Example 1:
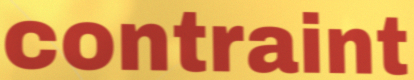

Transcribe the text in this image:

contraint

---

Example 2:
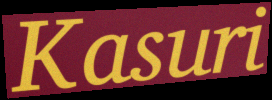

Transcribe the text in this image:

Kasuri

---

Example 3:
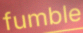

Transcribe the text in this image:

fumble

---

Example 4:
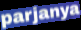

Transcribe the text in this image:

parjanya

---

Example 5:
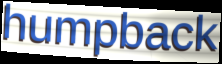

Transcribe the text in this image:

humpback